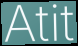
Atit